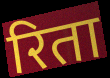
रिता